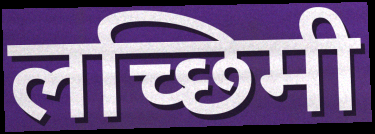
लच्छिमी